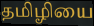
தமிழியை